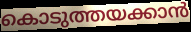
കൊടുത്തയക്കാൻ